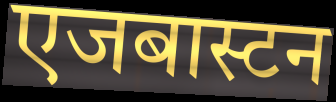
एजबास्टन